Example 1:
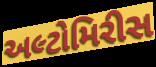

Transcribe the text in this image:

અલ્ટોમિરીસ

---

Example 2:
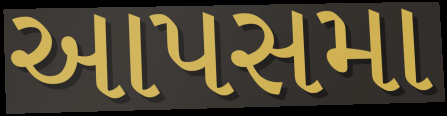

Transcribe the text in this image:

આપસમા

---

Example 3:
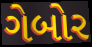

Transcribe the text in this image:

ગેબોર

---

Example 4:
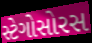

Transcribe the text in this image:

સ્ટેગોસોરસ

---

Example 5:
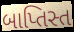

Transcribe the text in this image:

બાપ્તિસ્ત